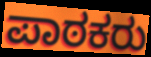
ಪಾಠಕರು